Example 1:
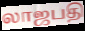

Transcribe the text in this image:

லாஜபதி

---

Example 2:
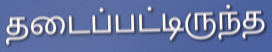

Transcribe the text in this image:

தடைப்பட்டிருந்த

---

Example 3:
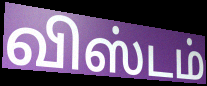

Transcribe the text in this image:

விஸ்டம்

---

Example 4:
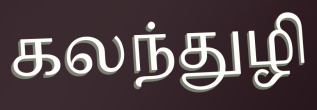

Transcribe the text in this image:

கலந்துழி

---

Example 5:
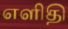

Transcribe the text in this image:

எளிதி